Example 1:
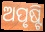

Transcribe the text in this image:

ଅପୃଷ୍ଟି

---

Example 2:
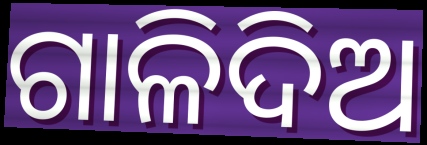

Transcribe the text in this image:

ଗାଳିଦିଅ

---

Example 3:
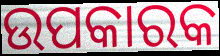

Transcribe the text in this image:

ଉପକାରକ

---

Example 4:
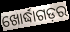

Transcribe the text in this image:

ଖୋର୍ଦ୍ଧାଗଡ଼ର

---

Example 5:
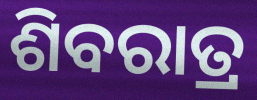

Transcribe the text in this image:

ଶିବରାତ୍ର